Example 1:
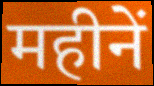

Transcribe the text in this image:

महीनें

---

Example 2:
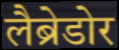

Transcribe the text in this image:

लैब्रेडोर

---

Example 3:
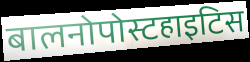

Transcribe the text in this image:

बालनोपोस्टहाइटिस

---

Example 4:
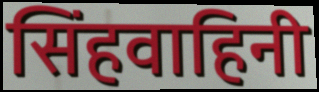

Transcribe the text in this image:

सिंहवाहिनी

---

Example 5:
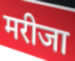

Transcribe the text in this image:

मरीजा